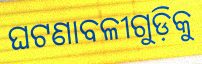
ଘଟଣାବଳୀଗୁଡ଼ିକୁ